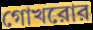
গোখরোর